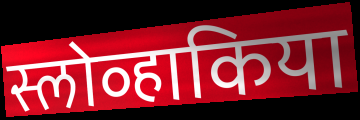
स्लोव्हाकिया